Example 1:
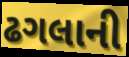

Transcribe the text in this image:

ઢગલાની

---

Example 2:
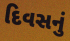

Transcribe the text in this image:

દિવસનું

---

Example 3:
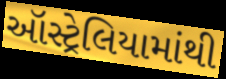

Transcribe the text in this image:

ઑસ્ટ્રેલિયામાંથી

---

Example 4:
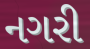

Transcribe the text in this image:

નગરી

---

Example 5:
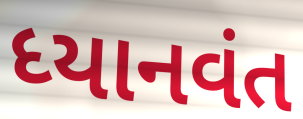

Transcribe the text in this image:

ધ્યાનવંત